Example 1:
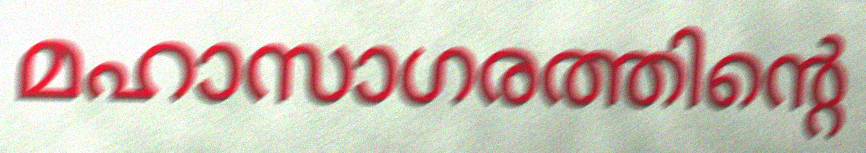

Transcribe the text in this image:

മഹാസാഗരത്തിന്റെ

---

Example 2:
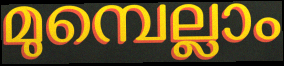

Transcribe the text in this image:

മുമ്പെല്ലാം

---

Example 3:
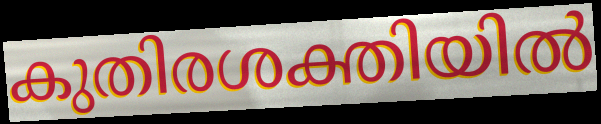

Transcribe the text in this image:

കുതിരശക്തിയിൽ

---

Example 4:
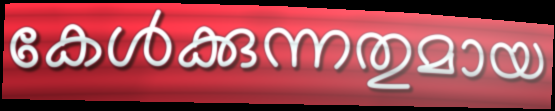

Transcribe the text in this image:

കേൾക്കുന്നതുമായ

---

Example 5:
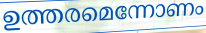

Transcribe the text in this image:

ഉത്തരമെന്നോണം